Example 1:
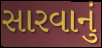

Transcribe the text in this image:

સારવાનું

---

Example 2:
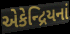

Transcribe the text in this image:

એકેન્દ્રિયનાં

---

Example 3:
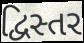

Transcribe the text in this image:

દ્વિસ્તર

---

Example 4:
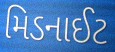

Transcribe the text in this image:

મિડનાઈટ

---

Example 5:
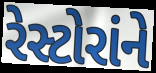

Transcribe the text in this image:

રેસ્ટોરાંને